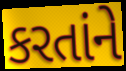
કરતાંને